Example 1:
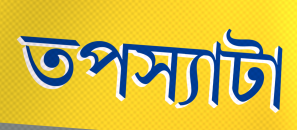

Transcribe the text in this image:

তপস্যাটা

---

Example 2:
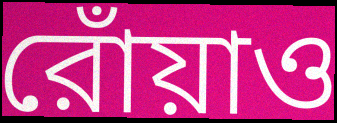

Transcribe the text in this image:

রোঁয়াও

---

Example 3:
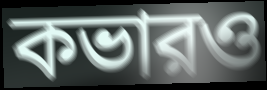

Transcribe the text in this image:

কভারও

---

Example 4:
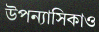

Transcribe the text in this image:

উপন্যাসিকাও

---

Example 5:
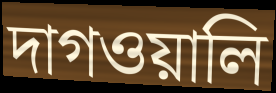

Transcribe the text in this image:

দাগওয়ালি